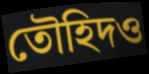
তৌহিদও